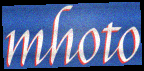
mhoto